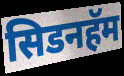
सिडनहॅम